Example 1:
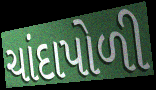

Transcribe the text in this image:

ચાંદાપોળી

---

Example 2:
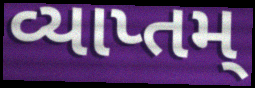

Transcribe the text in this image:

વ્યાપ્તમ્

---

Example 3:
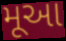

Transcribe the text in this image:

મૂઆ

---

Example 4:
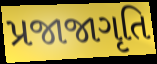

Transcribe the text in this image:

પ્રજાજાગૃતિ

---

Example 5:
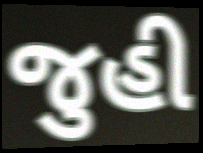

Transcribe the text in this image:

જુહી